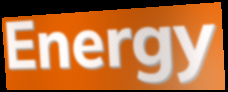
Energy